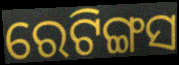
ରେଟିଙ୍ଗସ